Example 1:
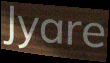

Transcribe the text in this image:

Jyare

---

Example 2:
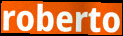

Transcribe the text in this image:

roberto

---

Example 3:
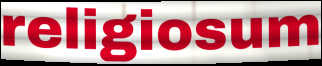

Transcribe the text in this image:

religiosum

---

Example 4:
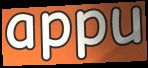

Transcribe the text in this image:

appu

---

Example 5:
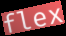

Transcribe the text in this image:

flex